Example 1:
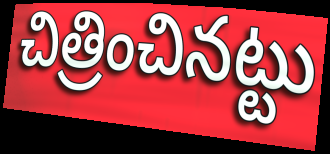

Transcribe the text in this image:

చిత్రించినట్టు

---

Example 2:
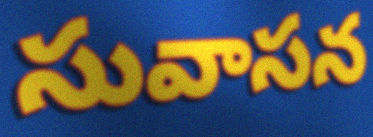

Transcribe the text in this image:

సువాసన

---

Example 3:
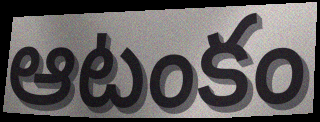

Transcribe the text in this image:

ఆటంకం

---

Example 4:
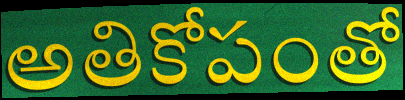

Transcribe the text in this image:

అతికోపంతో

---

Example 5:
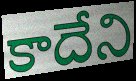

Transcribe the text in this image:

కాదేని